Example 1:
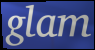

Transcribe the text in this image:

glam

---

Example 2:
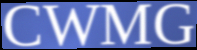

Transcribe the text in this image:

CWMG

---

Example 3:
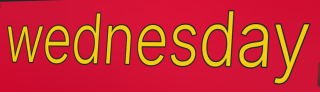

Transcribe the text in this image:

wednesday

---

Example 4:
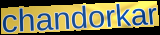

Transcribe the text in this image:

chandorkar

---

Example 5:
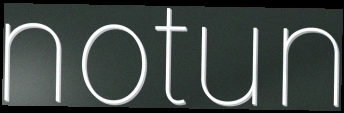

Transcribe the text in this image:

notun